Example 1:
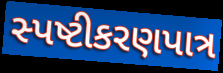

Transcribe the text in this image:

સ્પષ્ટીકરણપાત્ર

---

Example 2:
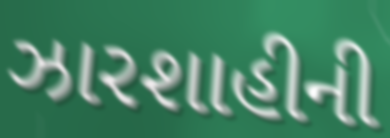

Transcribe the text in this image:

ઝારશાહીની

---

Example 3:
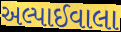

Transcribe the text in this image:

અલ્પાઈવાલા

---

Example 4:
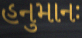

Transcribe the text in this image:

હનુમાનઃ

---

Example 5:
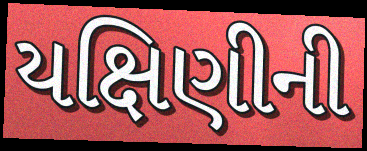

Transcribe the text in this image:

યક્ષિણીની